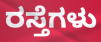
ರಸ್ತೆಗಳು